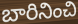
బారినించి